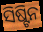
ସିଷ୍ଟିନ